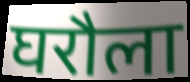
घरौला